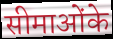
सीमाओंके